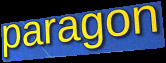
paragon